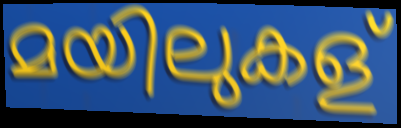
മയിലുകള്